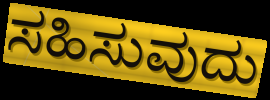
ಸಹಿಸುವುದು